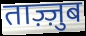
ताज़्ज़ुब